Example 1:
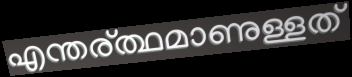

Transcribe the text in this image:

എന്തര്ത്ഥമാണുള്ളത്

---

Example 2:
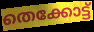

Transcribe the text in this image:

തെക്കോട്ട്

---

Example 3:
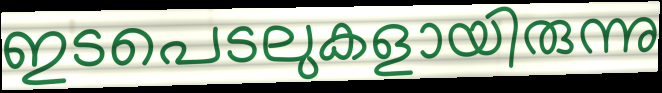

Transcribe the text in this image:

ഇടപെടലുകളായിരുന്നു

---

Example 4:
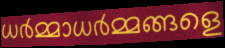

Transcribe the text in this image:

ധർമ്മാധർമ്മങ്ങളെ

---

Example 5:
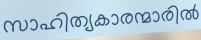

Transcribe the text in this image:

സാഹിത്യകാരന്മാരിൽ